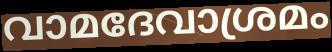
വാമദേവാശ്രമം